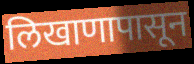
लिखाणापासून